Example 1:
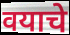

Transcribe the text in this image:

वयाचे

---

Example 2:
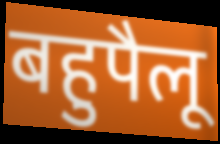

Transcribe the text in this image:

बहुपैलू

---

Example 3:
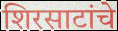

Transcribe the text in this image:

शिरसाटांचे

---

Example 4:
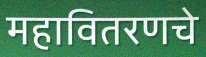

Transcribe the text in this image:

महावितरणचे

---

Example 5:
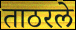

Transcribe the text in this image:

ताठरले